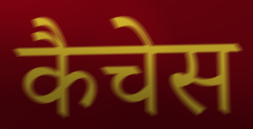
कैचेस